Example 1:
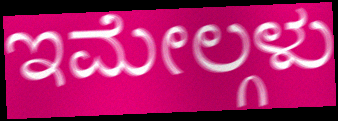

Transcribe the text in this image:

ಇಮೇಲ್ಗಳು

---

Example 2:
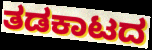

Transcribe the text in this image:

ತಡಕಾಟದ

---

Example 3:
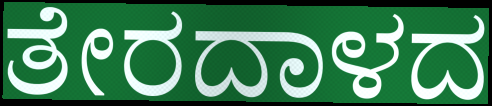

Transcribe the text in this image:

ತೇರದಾಳದ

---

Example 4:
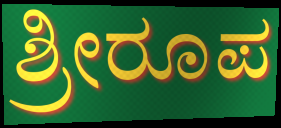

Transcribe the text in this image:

ಶ್ರೀರೂಪ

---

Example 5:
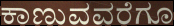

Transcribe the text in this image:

ಕಾಣುವವರೆಗೂ